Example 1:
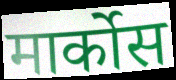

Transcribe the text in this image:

मार्कोस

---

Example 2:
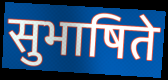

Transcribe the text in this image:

सुभाषिते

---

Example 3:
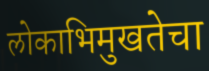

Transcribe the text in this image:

लोकाभिमुखतेचा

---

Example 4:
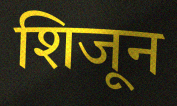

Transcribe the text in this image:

शिजून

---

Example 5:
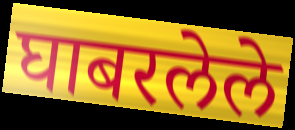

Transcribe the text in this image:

घाबरलेले